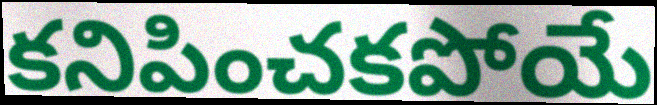
కనిపించకపోయే